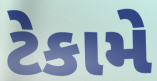
ટેકામે